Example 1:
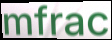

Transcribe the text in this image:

mfrac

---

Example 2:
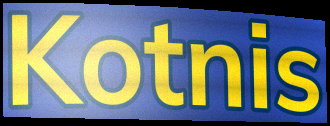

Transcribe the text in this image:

Kotnis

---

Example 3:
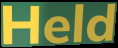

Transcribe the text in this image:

Held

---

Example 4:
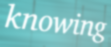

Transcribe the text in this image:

knowing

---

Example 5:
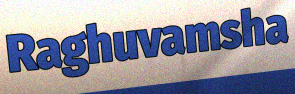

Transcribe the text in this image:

Raghuvamsha